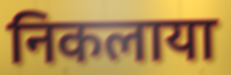
निकलाया